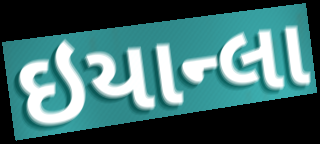
ઇયાન્લા